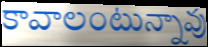
కావాలంటున్నావు